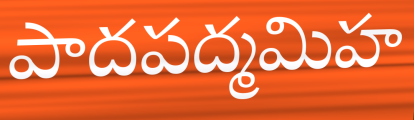
పాదపద్మమిహ